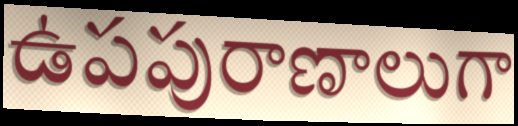
ఉపపురాణాలుగా